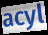
acyl